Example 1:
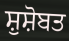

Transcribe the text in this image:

ਸ਼ੁਸ਼ੋਬਤ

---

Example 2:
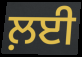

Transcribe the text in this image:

ਲ਼ਈ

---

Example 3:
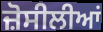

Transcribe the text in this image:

ਜ਼ੋਸੀਲੀਆਂ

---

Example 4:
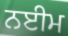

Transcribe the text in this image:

ਨਈਮ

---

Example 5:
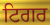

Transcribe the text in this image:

ਟਿਗਰ